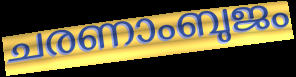
ചരണാംബുജം